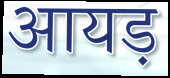
आयड़